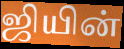
ஜியின்